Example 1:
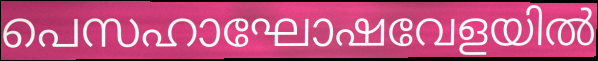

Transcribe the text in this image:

പെസഹാഘോഷവേളയിൽ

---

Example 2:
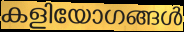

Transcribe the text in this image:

കളിയോഗങ്ങൾ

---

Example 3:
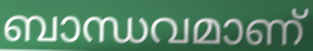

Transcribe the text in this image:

ബാന്ധവമാണ്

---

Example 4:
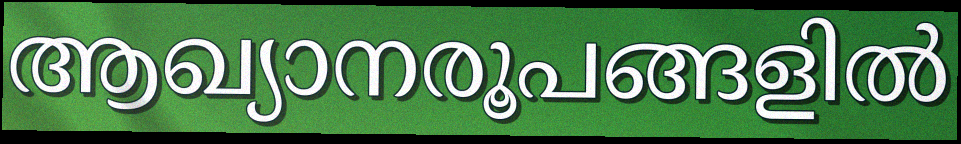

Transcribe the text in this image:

ആഖ്യാനരൂപങ്ങളിൽ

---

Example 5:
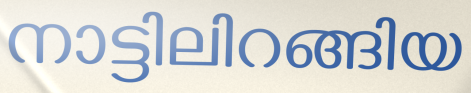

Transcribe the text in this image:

നാട്ടിലിറങ്ങിയ